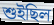
শুইছিল